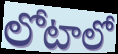
లోటాలో